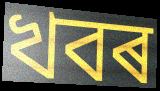
খবৰ